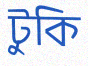
টুকি